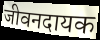
जीवनदायक